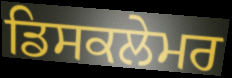
ਡਿਸਕਲੇਮਰ